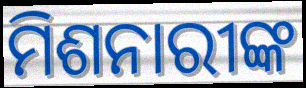
ମିଶନାରୀଙ୍କ